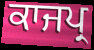
ਕਾਜਪ੍ਰ